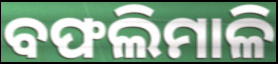
ବଫଲିମାଳି